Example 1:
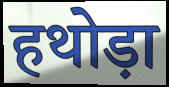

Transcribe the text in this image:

हथोड़ा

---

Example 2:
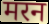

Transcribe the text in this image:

मरन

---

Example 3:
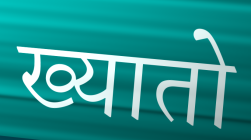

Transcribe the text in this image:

ख्यातो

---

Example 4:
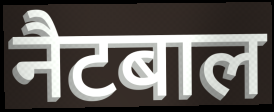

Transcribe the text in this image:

नैटबाल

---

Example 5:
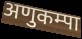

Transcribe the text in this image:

अणुकम्पा